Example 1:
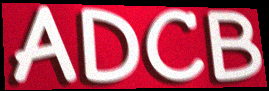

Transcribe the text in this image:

ADCB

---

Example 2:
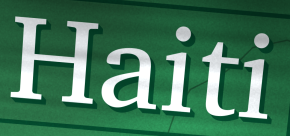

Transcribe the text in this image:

Haiti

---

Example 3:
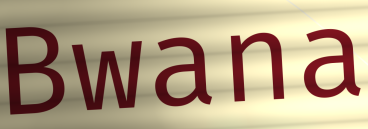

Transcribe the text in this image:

Bwana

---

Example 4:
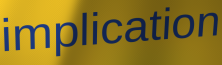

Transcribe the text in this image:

implication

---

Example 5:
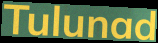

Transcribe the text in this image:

Tulunad